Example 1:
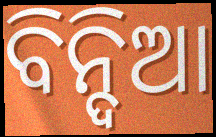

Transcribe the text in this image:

ବିନ୍ଦିଆ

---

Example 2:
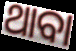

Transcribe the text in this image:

ଥାବା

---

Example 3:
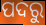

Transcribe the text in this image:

ପଦରୁ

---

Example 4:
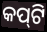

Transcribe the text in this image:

କପ୍‌ଟି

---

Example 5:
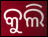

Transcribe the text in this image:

କୁଲି